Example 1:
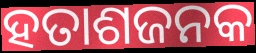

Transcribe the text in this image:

ହତାଶଜନକ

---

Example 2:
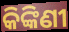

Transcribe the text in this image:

କିଙ୍କିଣୀ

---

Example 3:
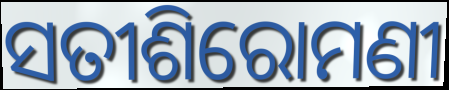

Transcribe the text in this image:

ସତୀଶିରୋମଣୀ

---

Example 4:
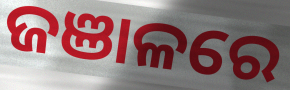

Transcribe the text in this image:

ଜଞାଳରେ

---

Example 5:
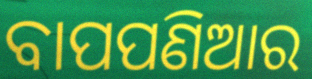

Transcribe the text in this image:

ବାପପଣିଆର